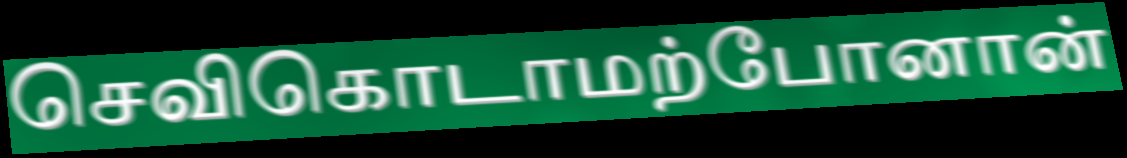
செவிகொடாமற்போனான்